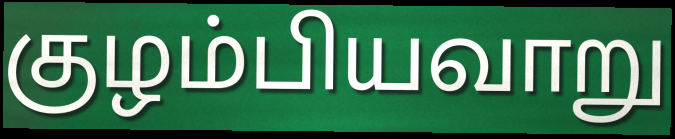
குழம்பியவாறு